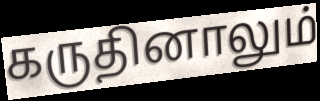
கருதினாலும்